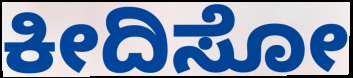
ಕೀದಿಸೋ